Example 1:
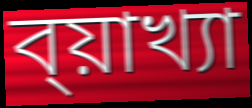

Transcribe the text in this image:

ব্য়াখ্যা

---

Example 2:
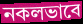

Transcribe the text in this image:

নকলভাবে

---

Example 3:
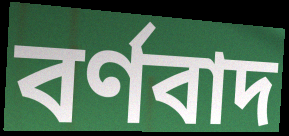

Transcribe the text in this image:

বর্ণবাদ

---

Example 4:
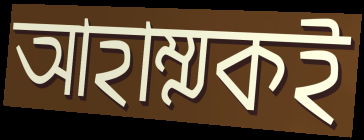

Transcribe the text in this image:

আহাম্মকই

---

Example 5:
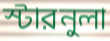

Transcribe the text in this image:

স্টারনুলা